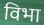
विभा